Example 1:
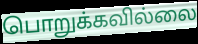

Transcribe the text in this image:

பொறுக்கவில்லை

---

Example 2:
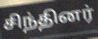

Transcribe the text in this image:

சிந்தினர்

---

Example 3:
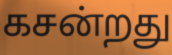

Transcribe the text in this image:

கசன்றது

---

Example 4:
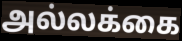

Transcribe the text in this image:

அல்லக்கை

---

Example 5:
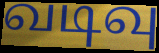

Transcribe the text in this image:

வடிவு